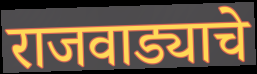
राजवाड्याचे